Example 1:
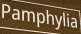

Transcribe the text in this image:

Pamphylia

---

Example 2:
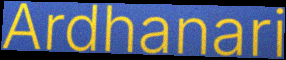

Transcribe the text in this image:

Ardhanari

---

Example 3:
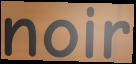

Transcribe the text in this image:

noir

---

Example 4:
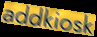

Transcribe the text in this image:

addkiosk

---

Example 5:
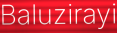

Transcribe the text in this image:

Baluzirayi